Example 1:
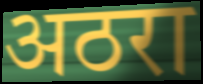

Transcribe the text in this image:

अठरा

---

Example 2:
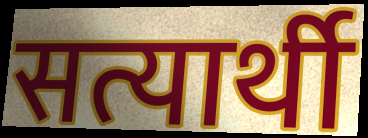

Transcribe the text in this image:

सत्यार्थी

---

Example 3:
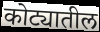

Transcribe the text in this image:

कोट्यातील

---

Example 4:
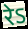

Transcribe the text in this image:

रेऽ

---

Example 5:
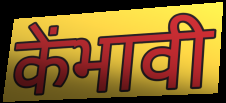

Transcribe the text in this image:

केंभावी